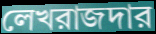
লেখরাজদার